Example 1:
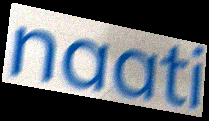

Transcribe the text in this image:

naati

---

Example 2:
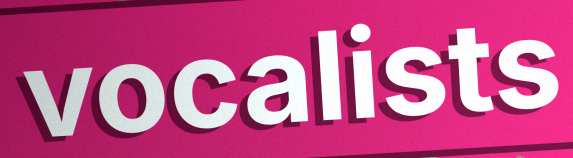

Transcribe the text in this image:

vocalists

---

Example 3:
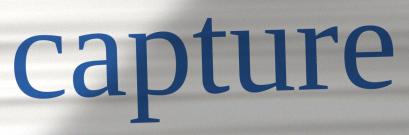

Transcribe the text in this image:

capture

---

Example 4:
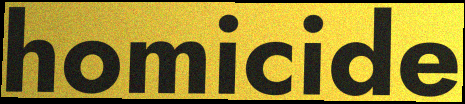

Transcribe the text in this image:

homicide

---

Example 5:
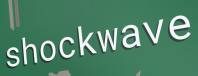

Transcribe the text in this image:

shockwave